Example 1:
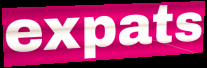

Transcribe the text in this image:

expats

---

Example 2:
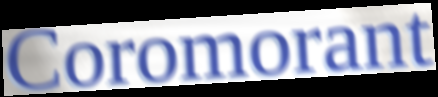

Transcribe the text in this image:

Coromorant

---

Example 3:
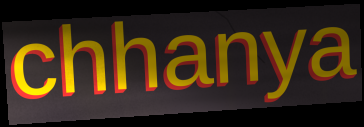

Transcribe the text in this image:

chhanya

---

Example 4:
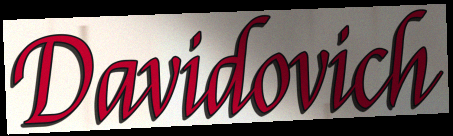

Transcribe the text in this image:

Davidovich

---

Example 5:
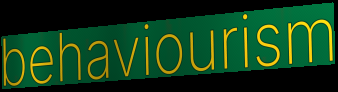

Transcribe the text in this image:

behaviourism